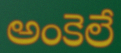
అంకెలే